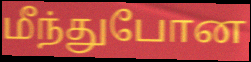
மீந்துபோன